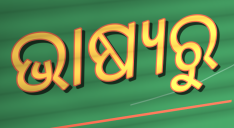
ଭାଷ୍ୟରୁ